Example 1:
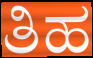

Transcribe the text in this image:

ತಿಹ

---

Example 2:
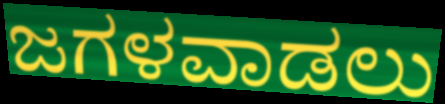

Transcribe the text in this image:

ಜಗಳವಾಡಲು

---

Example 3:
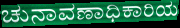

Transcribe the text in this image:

ಚುನಾವಣಾಧಿಕಾರಿಯ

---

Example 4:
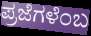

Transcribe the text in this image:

ಪ್ರಜೆಗಳೆಂಬ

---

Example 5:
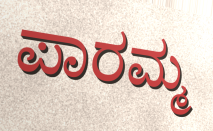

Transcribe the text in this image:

ಪಾರಮ್ಮ